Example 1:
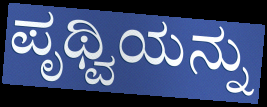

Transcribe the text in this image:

ಪೃಥ್ವಿಯನ್ನು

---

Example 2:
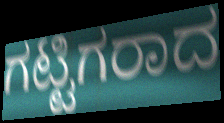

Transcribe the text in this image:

ಗಟ್ಟಿಗರಾದ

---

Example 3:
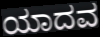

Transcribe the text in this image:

ಯಾದವ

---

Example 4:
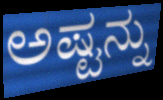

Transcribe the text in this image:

ಅಷ್ಟನ್ನು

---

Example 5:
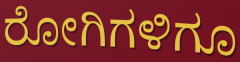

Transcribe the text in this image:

ರೋಗಿಗಳಿಗೂ